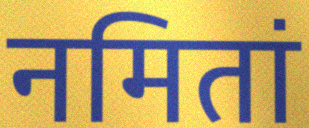
नमितां